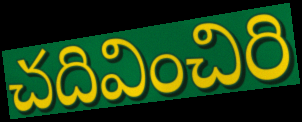
చదివించిరి